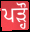
ਪੜ੍ਹੌ